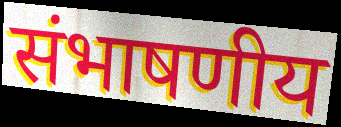
संभाषणीय